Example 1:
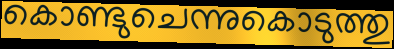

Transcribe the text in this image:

കൊണ്ടുചെന്നുകൊടുത്തു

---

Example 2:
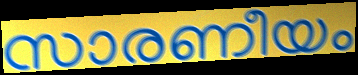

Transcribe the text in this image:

സാരണീയം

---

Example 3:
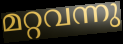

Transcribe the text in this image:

മറ്റവന്നു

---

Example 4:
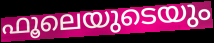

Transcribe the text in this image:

ഫൂലെയുടെയും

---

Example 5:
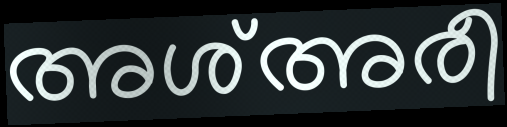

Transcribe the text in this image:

അശ്അരീ